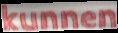
kunnen